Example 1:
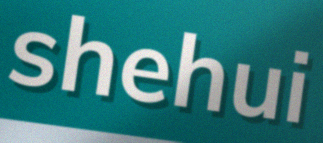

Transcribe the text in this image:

shehui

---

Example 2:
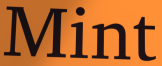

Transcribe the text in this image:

Mint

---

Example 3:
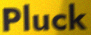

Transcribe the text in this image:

Pluck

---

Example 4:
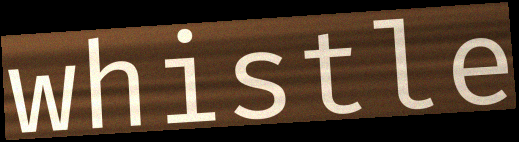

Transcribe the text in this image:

whistle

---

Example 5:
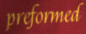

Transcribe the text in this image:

preformed